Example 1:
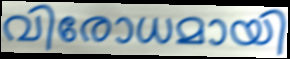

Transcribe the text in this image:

വിരോധമായി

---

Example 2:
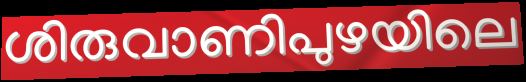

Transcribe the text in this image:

ശിരുവാണിപുഴയിലെ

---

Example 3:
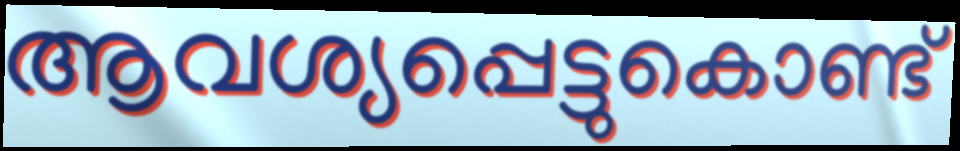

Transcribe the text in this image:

ആവശ്യപ്പെട്ടുകൊണ്ട്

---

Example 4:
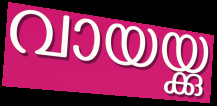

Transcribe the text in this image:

വായയ്ക്കു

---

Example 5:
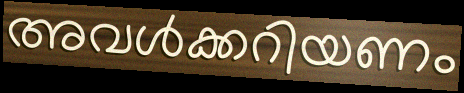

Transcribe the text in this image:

അവൾക്കറിയണം